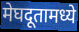
मेघदूतामध्ये